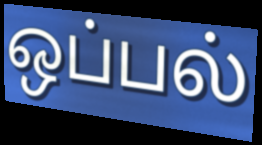
ஒப்பல்